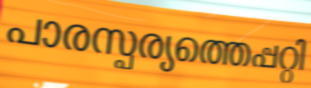
പാരസ്പര്യത്തെപ്പറ്റി